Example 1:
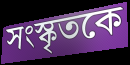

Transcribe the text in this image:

সংস্কৃতকে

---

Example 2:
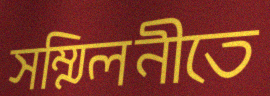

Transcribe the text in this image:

সম্মিলনীতে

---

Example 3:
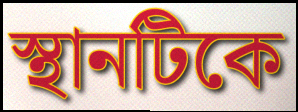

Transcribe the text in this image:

স্থানটিকে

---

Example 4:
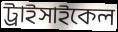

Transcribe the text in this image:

ট্রাইসাইকেল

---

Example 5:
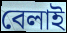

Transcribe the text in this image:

বেলাই